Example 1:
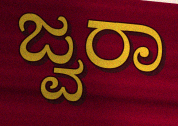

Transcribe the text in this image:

ಜ್ವರಾ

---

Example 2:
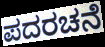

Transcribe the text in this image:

ಪದರಚನೆ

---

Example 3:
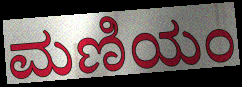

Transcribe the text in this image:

ಮಣಿಯಂ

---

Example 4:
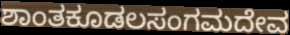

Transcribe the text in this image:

ಶಾಂತಕೂಡಲಸಂಗಮದೇವ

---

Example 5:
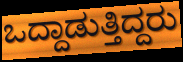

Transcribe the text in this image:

ಒದ್ದಾಡುತ್ತಿದ್ದರು